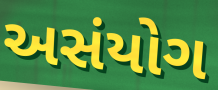
અસંયોગ